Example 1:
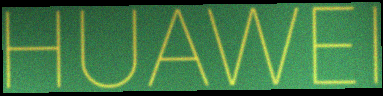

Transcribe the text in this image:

HUAWEI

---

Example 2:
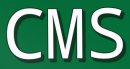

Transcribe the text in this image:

CMS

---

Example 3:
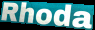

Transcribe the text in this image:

Rhoda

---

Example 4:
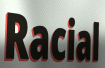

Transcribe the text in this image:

Racial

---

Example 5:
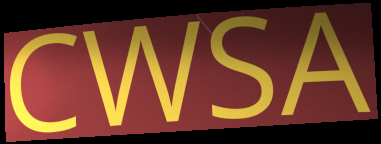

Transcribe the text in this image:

CWSA